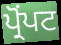
ਪ੍ਰੋਂਪਟ